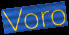
Voro